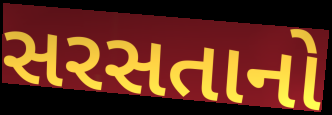
સરસતાનો